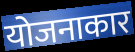
योजनाकार